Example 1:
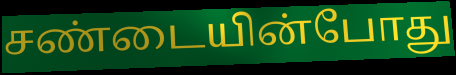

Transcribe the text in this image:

சண்டையின்போது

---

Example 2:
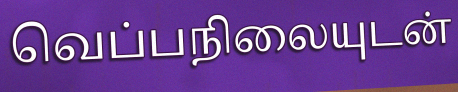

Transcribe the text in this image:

வெப்பநிலையுடன்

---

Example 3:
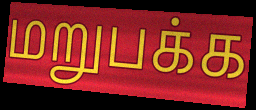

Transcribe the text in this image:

மறுபக்க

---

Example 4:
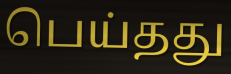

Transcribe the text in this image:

பெய்தது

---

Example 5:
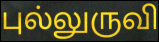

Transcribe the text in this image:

புல்லுருவி